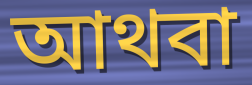
আথবা